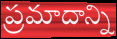
ప్రమాదాన్ని